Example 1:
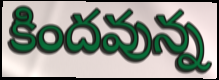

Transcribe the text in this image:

కిందవున్న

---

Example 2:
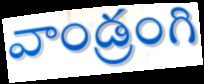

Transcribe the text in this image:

వాండ్రంగి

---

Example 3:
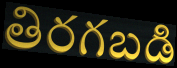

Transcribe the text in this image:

తిరగబడి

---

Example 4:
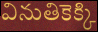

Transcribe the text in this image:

వినుతికెక్కి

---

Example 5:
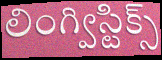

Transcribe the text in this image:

లింగ్విస్టిక్స్